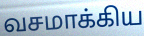
வசமாக்கிய